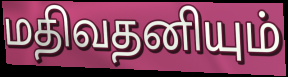
மதிவதனியும்